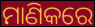
ମାଣିକରେ